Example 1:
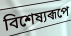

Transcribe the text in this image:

বিশেষ্যৰূপে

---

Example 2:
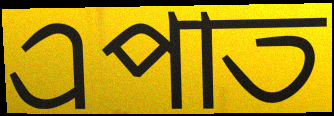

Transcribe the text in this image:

এপাত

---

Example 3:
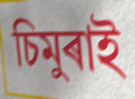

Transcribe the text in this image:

চিমুৰাই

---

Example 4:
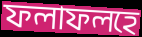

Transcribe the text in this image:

ফলাফলহে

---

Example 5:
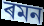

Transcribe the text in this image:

ৰমন